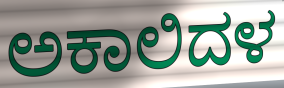
ಅಕಾಲಿದಳ